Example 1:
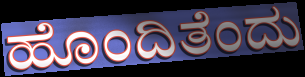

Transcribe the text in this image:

ಹೊಂದಿತೆಂದು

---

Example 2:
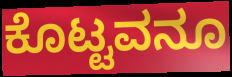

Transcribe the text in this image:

ಕೊಟ್ಟವನೂ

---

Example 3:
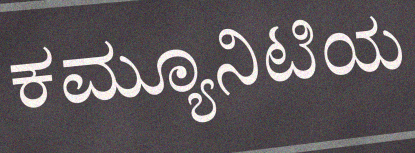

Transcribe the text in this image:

ಕಮ್ಯೂನಿಟಿಯ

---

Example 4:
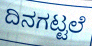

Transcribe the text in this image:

ದಿನಗಟ್ಟಲೆ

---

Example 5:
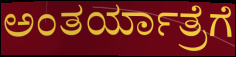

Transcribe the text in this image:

ಅಂತರ್ಯಾತ್ರೆಗೆ